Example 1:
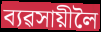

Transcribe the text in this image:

ব্যৱসায়ীলৈ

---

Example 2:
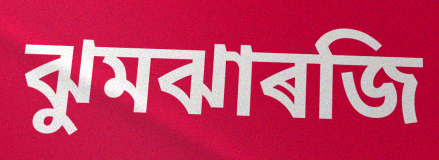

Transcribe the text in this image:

ঝুমঝাৰজি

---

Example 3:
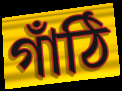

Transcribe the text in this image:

গাঁঠি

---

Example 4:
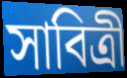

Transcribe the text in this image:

সাবিত্ৰী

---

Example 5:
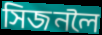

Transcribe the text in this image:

সিজনলৈ